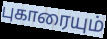
புகாரையும்